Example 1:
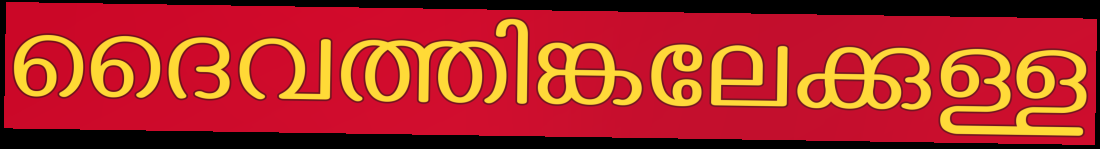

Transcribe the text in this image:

ദൈവത്തിങ്കലേക്കുള്ള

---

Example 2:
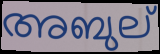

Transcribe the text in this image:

അബുല്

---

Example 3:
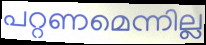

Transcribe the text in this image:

പറ്റണമെന്നില്ല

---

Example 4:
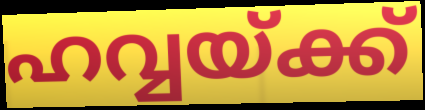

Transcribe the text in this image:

ഹവ്വയ്ക്ക്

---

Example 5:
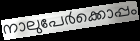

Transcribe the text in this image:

നാലുപേർക്കൊപ്പം